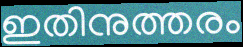
ഇതിനുത്തരം